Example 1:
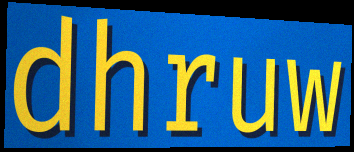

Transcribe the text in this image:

dhruw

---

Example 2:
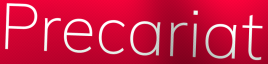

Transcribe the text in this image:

Precariat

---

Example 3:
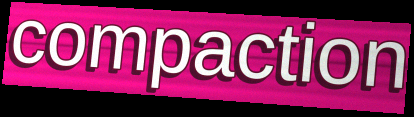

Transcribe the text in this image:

compaction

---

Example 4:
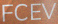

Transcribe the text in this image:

FCEV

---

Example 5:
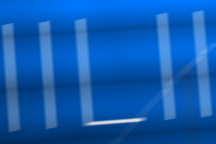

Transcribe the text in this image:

IILII